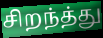
சிறந்த்து